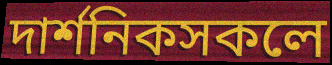
দাৰ্শনিকসকলে